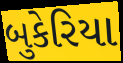
બુકેરિયા